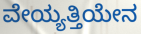
ವೇಯ್ಯತ್ತಿಯೇನ